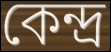
কেন্দ্র